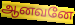
ஆனவனே